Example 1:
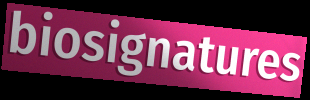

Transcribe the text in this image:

biosignatures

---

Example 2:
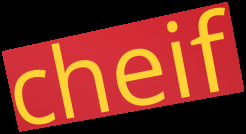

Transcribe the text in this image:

cheif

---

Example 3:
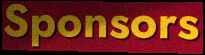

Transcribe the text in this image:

Sponsors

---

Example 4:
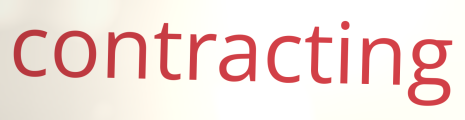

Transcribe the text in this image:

contracting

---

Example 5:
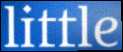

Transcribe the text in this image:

little